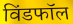
विंडफॉल